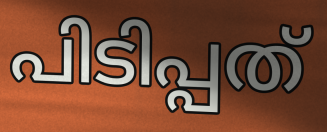
പിടിപ്പത്